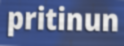
pritinun